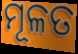
ମୂଳତ